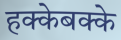
हक्केबक्के